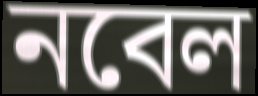
নবেল